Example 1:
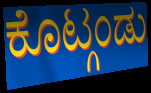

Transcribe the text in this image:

ಕೊಟ್ಗಂಡು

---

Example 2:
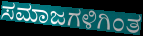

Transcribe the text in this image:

ಸಮಾಜಗಳಿಗಿಂತ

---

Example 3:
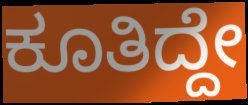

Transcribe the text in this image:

ಕೂತಿದ್ದೇ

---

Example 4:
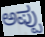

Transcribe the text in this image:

ಅಪ್ಪು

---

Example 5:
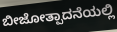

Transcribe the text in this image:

ಬೀಜೋತ್ಪಾದನೆಯಲ್ಲಿ